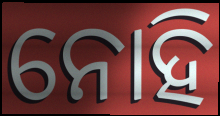
ନୋହି